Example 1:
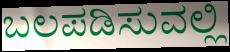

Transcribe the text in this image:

ಬಲಪಡಿಸುವಲ್ಲಿ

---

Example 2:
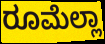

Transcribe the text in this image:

ರೂಮೆಲ್ಲಾ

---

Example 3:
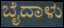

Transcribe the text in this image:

ಬೈದಾಳು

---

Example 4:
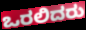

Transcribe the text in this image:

ಒರಲಿದರು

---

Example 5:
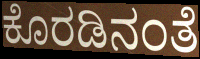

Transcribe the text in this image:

ಕೊರಡಿನಂತೆ